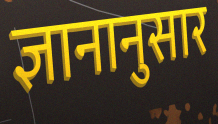
ज्ञानानुसार